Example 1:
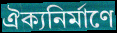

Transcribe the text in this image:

ঐক্যনির্মাণে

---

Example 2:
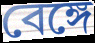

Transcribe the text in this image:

বেঙ্গে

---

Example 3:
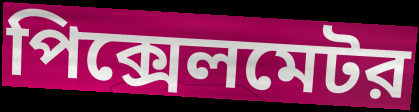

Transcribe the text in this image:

পিক্সেলমেটর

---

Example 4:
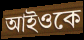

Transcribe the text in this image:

আইওকে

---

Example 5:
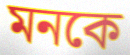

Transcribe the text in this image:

মনকে